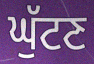
ਘੁੱਟਣ